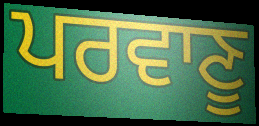
ਪਰਵਾਣੂ